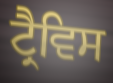
ਟ੍ਰੈਵਿਸ